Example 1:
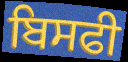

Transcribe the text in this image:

ਬਿਸਫੀ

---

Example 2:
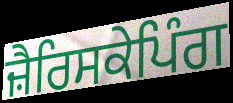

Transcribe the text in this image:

ਜ਼ੈਰਿਸਕੇਪਿੰਗ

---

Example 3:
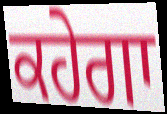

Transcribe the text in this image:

ਕਹੇਗਾ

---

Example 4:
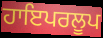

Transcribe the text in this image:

ਹਾਇਪਰਲੂਪ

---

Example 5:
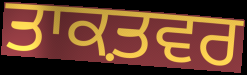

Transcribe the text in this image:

ਤਾਕ਼ਤਵਰ